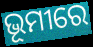
ଭୂମୀରେ